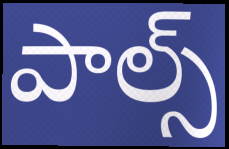
పాల్స్